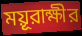
ময়ূরাক্ষীর